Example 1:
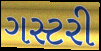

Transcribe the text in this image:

ગસ્ટરી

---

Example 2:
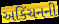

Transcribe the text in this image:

અકિંચનની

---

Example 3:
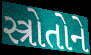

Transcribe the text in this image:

સ્ત્રોતોને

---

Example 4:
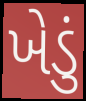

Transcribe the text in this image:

ખેડું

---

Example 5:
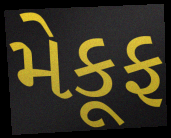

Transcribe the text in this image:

મેકૂફ